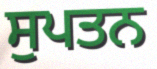
ਸੁਪਤਨ